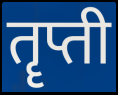
तॄप्ती